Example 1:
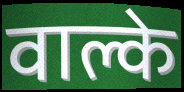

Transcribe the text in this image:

वाल्के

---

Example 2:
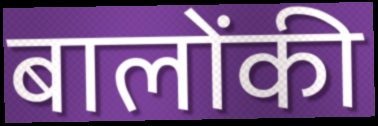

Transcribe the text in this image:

बालोंकी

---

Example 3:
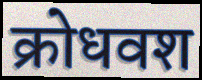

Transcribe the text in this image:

क्रोधवश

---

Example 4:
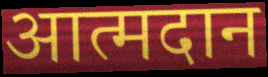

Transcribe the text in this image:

आत्मदान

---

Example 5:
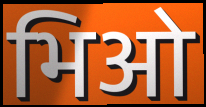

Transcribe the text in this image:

भिओ